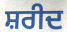
ਸ਼ਰੀਦ